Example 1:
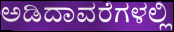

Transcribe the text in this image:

ಅಡಿದಾವರೆಗಳಲ್ಲಿ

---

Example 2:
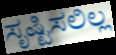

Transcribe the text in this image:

ಸೃಷ್ಟಿಸಲಿಲ್ಲ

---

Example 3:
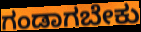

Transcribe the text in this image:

ಗಂಡಾಗಬೇಕು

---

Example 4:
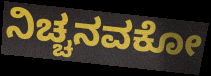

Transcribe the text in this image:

ನಿಚ್ಚನವಕೋ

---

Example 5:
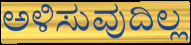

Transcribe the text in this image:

ಅಳಿಸುವುದಿಲ್ಲ